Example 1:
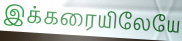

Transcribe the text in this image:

இக்கரையிலேயே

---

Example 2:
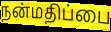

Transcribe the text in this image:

நன்மதிப்பை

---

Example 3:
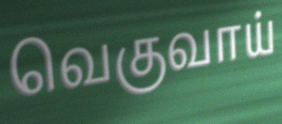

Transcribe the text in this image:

வெகுவாய்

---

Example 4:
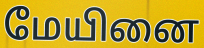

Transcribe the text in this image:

மேயினை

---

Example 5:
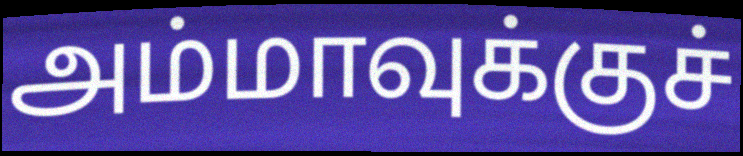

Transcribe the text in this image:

அம்மாவுக்குச்